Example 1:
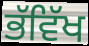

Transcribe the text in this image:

ਭੱਵਿੱਖ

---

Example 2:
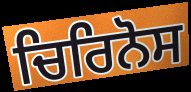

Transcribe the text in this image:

ਚਿਰਿਨੋਸ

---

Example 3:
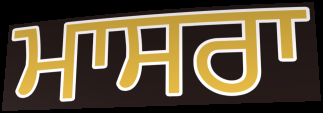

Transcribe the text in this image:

ਮਾਸਰਾ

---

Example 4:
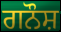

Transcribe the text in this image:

ਗਨੌਸ਼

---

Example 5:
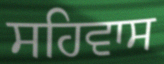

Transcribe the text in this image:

ਸਹਿਵਾਸ